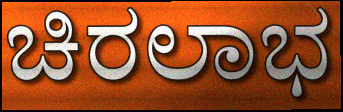
ಚಿರಲಾಭ